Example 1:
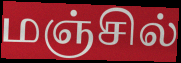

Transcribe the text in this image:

மஞ்சில்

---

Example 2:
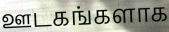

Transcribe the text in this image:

ஊடகங்களாக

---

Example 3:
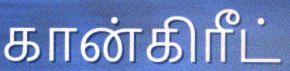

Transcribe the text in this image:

கான்கிரீட்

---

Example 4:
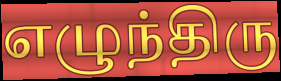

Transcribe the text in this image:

எழுந்திரு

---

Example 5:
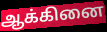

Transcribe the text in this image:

ஆக்கினை